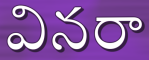
వినరా